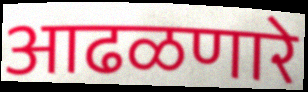
आढळणारे